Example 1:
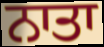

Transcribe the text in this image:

ਨਾਤਾ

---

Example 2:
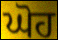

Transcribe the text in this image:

ਘੋਹ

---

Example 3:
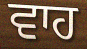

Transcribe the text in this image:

ਵਾਹ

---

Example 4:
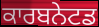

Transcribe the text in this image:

ਕਾਰਬਨੇਟਡ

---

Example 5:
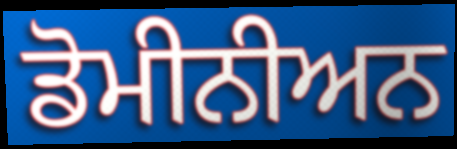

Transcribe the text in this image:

ਡੋਮੀਨੀਅਨ